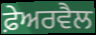
ਫ਼ੇਅਰਵੈਲ